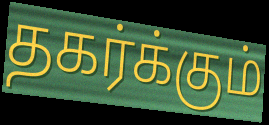
தகர்க்கும்